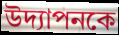
উদ্যাপনকে